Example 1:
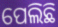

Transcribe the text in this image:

ପେଲିଛି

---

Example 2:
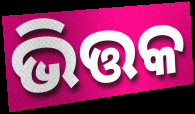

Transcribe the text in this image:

ଭିତ୍ତକ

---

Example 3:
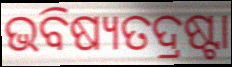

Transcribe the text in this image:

ଭବିଷ୍ୟତଦ୍ରଷ୍ଟା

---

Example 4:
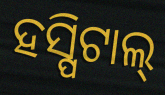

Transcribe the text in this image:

ହସ୍ପିଟାଲ୍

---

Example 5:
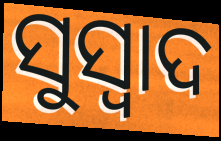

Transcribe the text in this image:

ସୁସ୍ୱାଦ